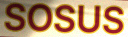
SOSUS